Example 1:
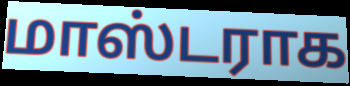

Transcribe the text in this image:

மாஸ்டராக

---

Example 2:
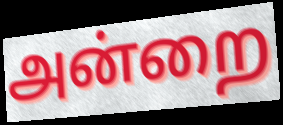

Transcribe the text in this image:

அன்றை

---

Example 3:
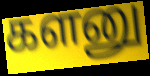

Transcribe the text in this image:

களனு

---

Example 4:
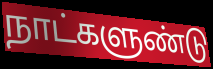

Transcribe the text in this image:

நாட்களுண்டு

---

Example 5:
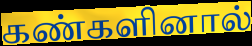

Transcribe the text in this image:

கண்களினால்